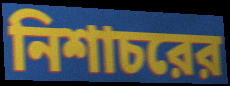
নিশাচরের